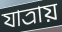
যাত্রায়